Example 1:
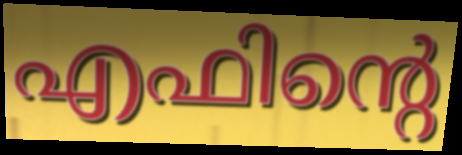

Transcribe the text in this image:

എഫിന്റെ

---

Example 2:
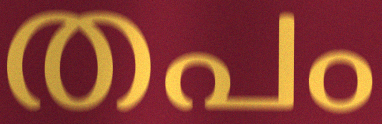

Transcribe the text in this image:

തപം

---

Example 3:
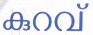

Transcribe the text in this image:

കുറവ്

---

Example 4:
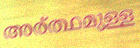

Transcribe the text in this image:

അര്ത്ഥമുള്ള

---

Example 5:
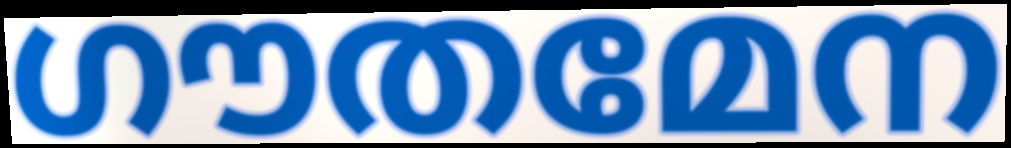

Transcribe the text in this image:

ഗൗതമേന